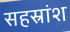
सहस्रांश